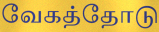
வேகத்தோடு